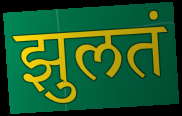
झुलतं